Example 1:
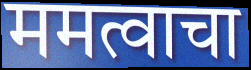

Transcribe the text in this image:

ममत्वाचा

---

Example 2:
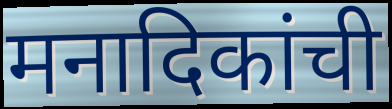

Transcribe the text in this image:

मनादिकांची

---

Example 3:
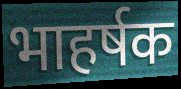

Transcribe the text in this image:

भाहर्षक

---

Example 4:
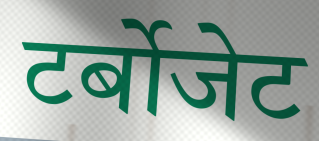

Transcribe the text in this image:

टर्बोजेट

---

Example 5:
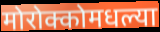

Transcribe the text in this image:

मोरोक्कोमधल्या